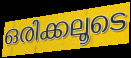
ഒരിക്കലൂടെ